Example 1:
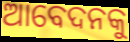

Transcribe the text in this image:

ଆବେଦନକୁ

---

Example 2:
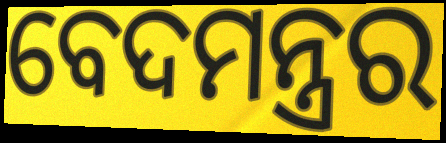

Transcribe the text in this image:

ବେଦମନ୍ତ୍ରର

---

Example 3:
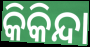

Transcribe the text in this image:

କିକିନ୍ଦା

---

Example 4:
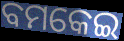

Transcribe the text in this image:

ବମକେଇ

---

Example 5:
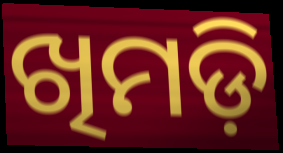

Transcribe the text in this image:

ଖିମଡ଼ି